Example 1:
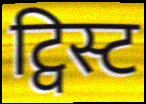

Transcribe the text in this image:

ट्विस्ट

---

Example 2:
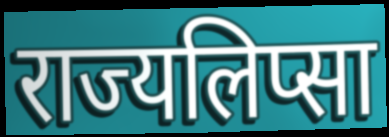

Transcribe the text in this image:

राज्यलिप्सा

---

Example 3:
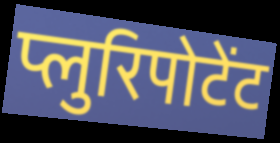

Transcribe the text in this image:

प्लुरिपोटेंट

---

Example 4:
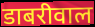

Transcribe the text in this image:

डाबरीवाल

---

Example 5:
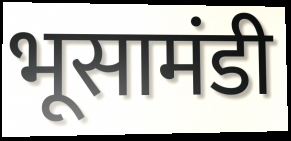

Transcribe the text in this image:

भूसामंडी